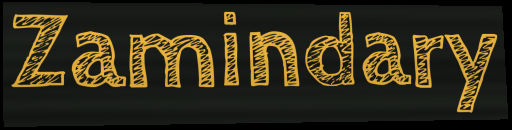
Zamindary